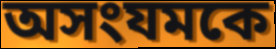
অসংযমকে